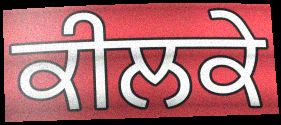
ਕੀਲਕੇ